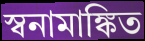
স্বনামাঙ্কিত